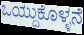
ಒಯ್ದುಕೊಳ್ಳನೆ